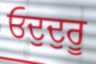
ਓਦੁਦੁਰੂ